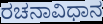
ರಚನಾವಿಧಾನ